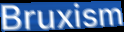
Bruxism